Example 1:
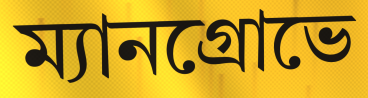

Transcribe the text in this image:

ম্যানগ্রোভে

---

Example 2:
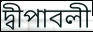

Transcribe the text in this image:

দ্বীপাবলী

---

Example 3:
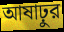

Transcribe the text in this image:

আষাঢ়ুর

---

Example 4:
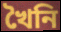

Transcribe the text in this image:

খৈনি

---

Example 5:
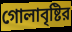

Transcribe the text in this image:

গোলাবৃষ্টির